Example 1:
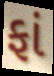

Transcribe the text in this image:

ફાં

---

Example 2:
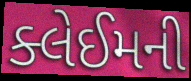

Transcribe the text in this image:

ક્લેઈમની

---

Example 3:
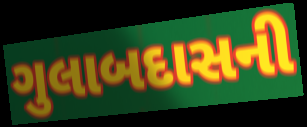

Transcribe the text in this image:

ગુલાબદાસની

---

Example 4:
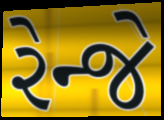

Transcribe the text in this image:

રેન્જે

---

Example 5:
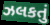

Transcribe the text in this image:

ઝલકતું